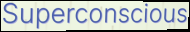
Superconscious